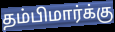
தம்பிமார்க்கு